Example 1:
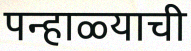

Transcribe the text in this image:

पन्हाळ्याची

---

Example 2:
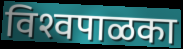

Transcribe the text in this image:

विश्वपाळका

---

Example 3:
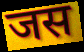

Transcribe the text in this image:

जस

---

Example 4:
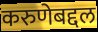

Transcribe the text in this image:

करुणेबद्दल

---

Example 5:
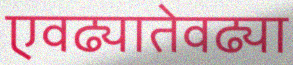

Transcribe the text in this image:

एवढ्यातेवढ्या